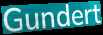
Gundert